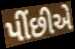
પીંછીએ